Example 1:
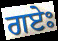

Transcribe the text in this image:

ਗਏਃ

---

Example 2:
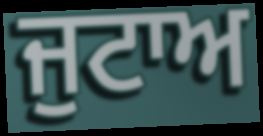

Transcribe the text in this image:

ਜੁਟਾਅ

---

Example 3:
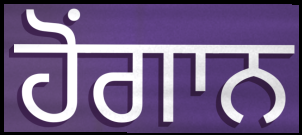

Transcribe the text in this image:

ਹੋਂਗਾਨ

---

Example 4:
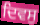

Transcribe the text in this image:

ਦਿਵਸੁ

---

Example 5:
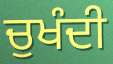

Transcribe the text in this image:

ਚੁਖੰਦੀ